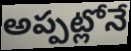
అప్పట్లోనే